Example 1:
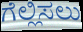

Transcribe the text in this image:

ಗೆಲ್ಲಿಸಲು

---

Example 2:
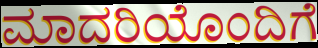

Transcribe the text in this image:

ಮಾದರಿಯೊಂದಿಗೆ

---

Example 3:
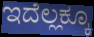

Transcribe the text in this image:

ಇದೆಲ್ಲಕ್ಕೂ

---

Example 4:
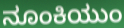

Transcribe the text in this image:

ನೂಂಕಿಯುಂ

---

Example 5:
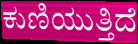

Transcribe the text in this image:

ಕುಣಿಯುತ್ತಿದೆ